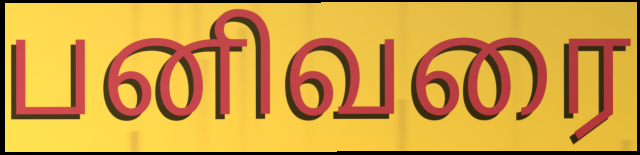
பனிவரை